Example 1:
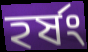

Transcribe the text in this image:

হর্ষং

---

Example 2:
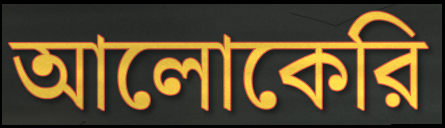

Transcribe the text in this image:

আলোকেরি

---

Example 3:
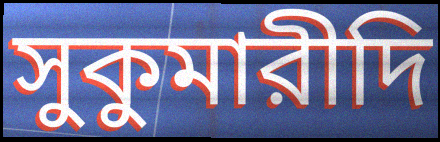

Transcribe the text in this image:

সুকুমারীদি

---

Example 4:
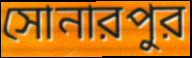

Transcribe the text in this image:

সোনারপুর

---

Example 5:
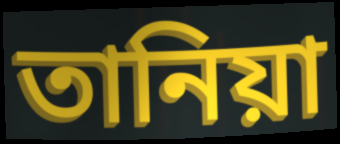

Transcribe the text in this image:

তানিয়া